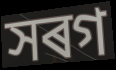
সৰগ